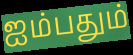
ஐம்பதும்